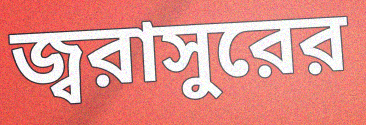
জ্বরাসুরের